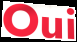
Oui